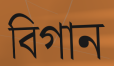
বিগান